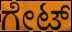
ಗೇಟ್